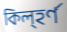
কিল্‌হর্ণ